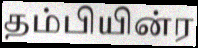
தம்பியின்ர